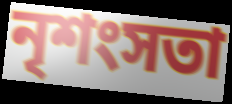
নৃশংসতা